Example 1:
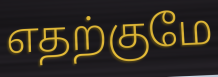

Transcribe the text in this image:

எதற்குமே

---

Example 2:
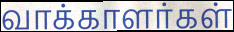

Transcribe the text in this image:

வாக்காளர்கள்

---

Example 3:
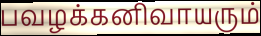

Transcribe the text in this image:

பவழக்கனிவாயரும்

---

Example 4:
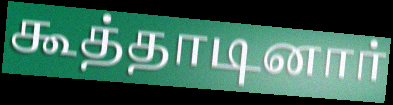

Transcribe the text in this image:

கூத்தாடினார்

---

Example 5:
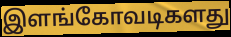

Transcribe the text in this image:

இளங்கோவடிகளது